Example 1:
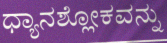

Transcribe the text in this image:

ಧ್ಯಾನಶ್ಲೋಕವನ್ನು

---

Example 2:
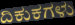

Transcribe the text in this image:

ದಿಕುಕಗಳು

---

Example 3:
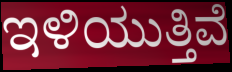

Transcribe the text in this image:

ಇಳಿಯುತ್ತಿವೆ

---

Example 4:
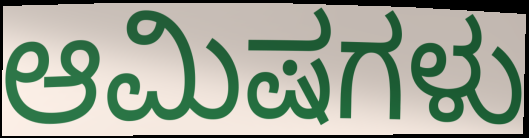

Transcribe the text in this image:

ಆಮಿಷಗಳು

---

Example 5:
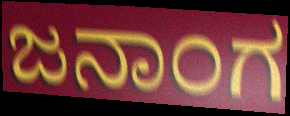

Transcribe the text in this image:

ಜನಾಂಗ